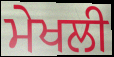
ਮੇਖਲੀ